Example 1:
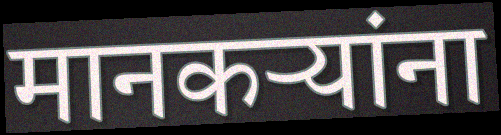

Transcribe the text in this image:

मानकऱ्यांना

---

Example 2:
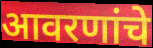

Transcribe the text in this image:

आवरणांचे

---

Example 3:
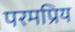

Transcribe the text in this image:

परमप्रिय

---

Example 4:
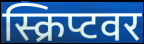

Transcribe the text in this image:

स्क्रिप्टवर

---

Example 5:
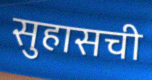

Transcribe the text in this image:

सुहासची